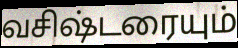
வசிஷ்டரையும்